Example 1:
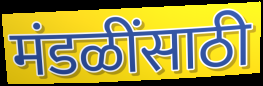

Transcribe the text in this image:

मंडळींसाठी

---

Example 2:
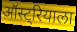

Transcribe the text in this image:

ऑस्ट्रियाला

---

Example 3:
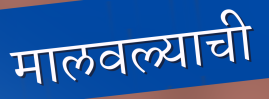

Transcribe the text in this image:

मालवल्याची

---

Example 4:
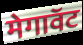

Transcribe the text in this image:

मेगावॅट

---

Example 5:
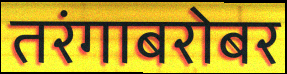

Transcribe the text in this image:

तरंगाबरोबर